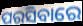
ପରସିବାରେ